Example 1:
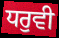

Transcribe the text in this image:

ਧਰੁਵੀ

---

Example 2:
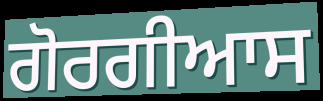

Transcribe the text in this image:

ਗੋਰਗੀਆਸ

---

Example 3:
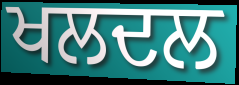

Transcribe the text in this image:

ਖਲਦਲ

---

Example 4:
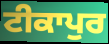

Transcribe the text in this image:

ਟੀਕਾਪੁਰ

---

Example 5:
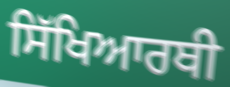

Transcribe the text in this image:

ਸਿੱਖਿਆਰਥੀ